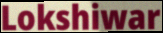
Lokshiwar